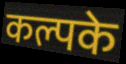
कल्पके